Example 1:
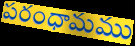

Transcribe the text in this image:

పరంధామము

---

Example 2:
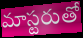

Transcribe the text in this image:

మాస్టరుతో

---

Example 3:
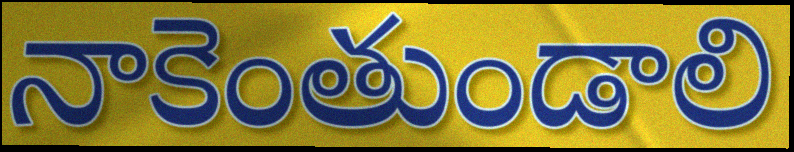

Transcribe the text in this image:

నాకెంతుండాలి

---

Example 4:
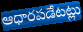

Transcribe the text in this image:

ఆధారపడేటట్లు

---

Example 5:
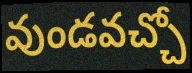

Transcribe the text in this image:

వుండవచ్చో